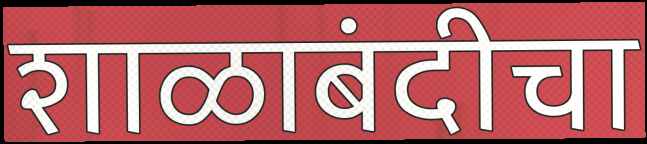
शाळाबंदीचा